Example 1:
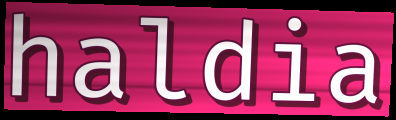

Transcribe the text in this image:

haldia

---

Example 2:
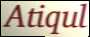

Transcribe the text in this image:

Atiqul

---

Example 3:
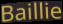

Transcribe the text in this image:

Baillie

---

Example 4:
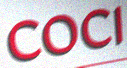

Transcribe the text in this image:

COCI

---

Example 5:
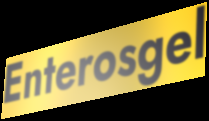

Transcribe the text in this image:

Enterosgel